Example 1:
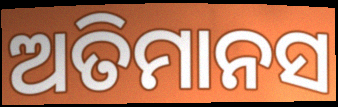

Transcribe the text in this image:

ଅତିମାନସ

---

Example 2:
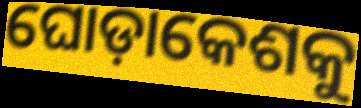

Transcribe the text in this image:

ଘୋଡ଼ାକେଶକୁ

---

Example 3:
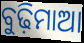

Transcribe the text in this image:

ବୁଢ଼ିମାଆ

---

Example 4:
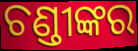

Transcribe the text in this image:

ଚଣ୍ଡୀଙ୍କର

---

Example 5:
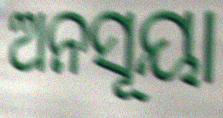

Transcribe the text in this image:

ଅନସୂୟା